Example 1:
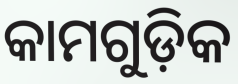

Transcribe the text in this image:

କାମଗୁଡ଼ିକ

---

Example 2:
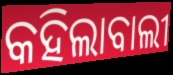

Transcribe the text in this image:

କହିଲାବାଲୀ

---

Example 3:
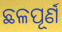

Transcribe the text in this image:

ଛଳପୂର୍ଣ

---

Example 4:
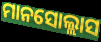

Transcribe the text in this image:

ମାନସୋଲ୍ଲାସ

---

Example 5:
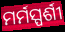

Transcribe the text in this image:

ମର୍ମସ୍ପର୍ଶୀ